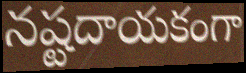
నష్టదాయకంగా